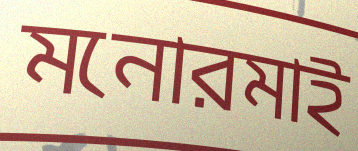
মনোরমাই